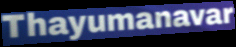
Thayumanavar